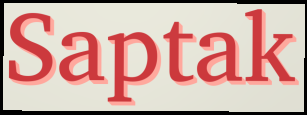
Saptak